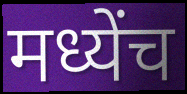
मध्येंच